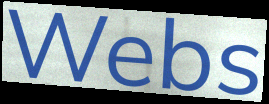
Webs